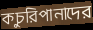
কচুরিপানাদের